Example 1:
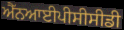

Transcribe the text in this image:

ਐੱਨਆਈਪੀਸੀਸੀਡੀ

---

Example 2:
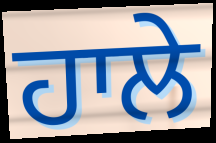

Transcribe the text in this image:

ਹਾਲੇ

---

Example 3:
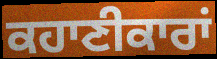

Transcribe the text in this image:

ਕਹਾਣੀਕਾਰਾਂ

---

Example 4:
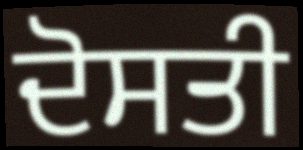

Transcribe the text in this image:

ਦੋਸਤੀ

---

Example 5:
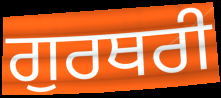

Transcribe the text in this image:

ਗੁਰਥਰੀ